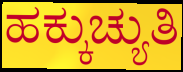
ಹಕ್ಕುಚ್ಯುತಿ